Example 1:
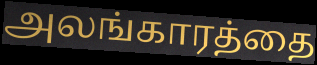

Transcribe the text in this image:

அலங்காரத்தை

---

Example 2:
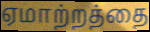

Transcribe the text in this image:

ஏமாற்றத்தை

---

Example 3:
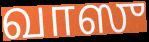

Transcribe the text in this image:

வாஸு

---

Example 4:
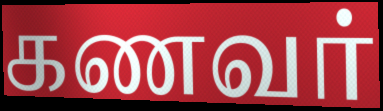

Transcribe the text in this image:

கணவர்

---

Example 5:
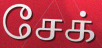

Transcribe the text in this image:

சேக்